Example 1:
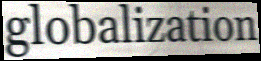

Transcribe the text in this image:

globalization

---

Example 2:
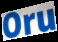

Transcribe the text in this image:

Oru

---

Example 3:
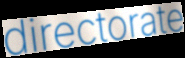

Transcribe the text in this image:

directorate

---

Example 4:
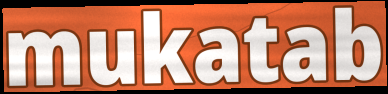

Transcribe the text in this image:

mukatab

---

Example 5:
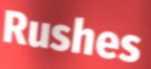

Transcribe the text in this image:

Rushes